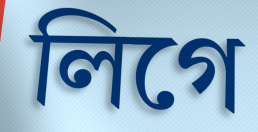
লিগে